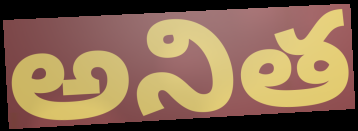
అనిత